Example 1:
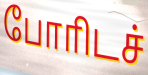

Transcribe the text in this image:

போரிடச்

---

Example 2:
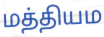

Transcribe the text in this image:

மத்தியம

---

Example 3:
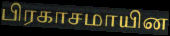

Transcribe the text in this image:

பிரகாசமாயின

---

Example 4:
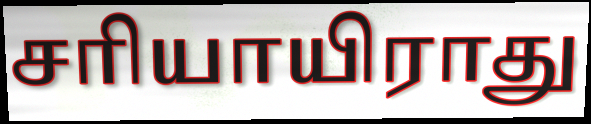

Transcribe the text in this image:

சரியாயிராது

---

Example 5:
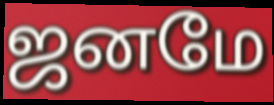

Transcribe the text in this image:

ஜனமே